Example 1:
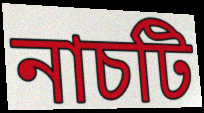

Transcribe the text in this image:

নাচটি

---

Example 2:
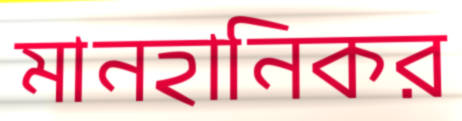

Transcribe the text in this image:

মানহানিকর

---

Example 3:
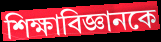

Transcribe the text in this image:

শিক্ষাবিজ্ঞানকে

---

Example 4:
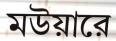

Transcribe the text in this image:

মউয়ারে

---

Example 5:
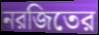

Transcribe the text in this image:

নরজিতের